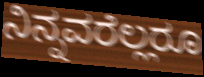
ನಿನ್ನವರೆಲ್ಲರೂ